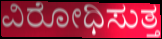
ವಿರೋಧಿಸುತ್ತ